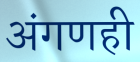
अंगणही